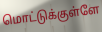
மொட்டுக்குள்ளே